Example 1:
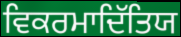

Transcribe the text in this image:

ਵਿਕਰਮਾਦਿੱਤਿਯ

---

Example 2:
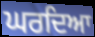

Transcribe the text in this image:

ਘਰਦਿਆ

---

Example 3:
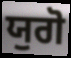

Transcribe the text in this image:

ਯੁਗੋ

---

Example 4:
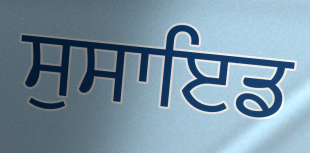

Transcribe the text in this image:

ਸੁਸਾਇਡ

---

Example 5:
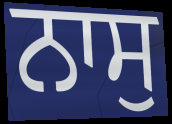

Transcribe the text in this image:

ਨਾਸੁ